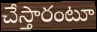
చేస్తారంటూ